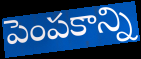
పెంపకాన్ని